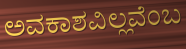
ಅವಕಾಶವಿಲ್ಲವೆಂಬ